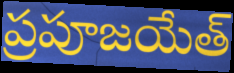
ప్రపూజయేత్